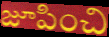
జూపించి